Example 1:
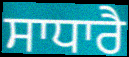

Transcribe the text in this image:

ਸਾਧਾਰੈ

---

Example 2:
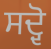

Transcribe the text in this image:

ਸਦ੍ਦੋ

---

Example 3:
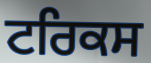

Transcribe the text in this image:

ਟਰਿਕਸ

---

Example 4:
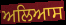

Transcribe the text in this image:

ਅਲਿਆਸ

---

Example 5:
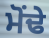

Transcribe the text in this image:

ਮੋਂਢੇ